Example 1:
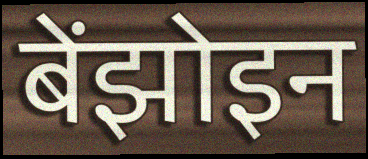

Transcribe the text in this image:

बेंझोइन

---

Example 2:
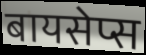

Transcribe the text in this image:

बायसेप्स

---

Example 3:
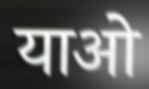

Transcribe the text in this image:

याओ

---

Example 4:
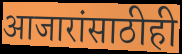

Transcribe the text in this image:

आजारांसाठीही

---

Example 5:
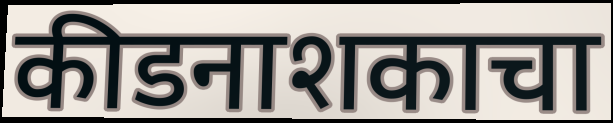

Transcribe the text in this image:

कीडनाशकाचा